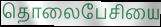
தொலைபேசியை